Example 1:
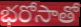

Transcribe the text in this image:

భరోసాతో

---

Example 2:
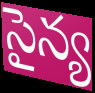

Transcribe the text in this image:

సైన్య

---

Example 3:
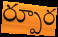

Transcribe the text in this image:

ర్పూర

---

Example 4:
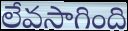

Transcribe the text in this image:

లేవసాగింది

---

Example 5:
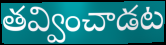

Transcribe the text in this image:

తవ్వించాడట